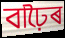
বাঢ়ৈৰ